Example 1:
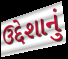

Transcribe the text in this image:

ઉદ્દેશાનું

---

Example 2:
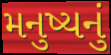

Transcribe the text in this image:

મનુષ્યનું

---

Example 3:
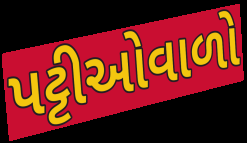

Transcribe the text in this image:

પટ્ટીઓવાળો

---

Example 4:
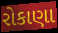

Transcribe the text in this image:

રોકાણા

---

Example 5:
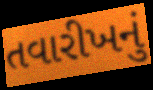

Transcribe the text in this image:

તવારીખનું